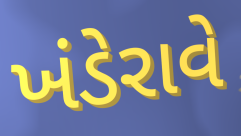
ખંડેરાવે